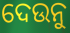
ଦେଉନୁ